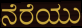
ನೆರೆಯು